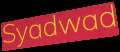
Syadwad